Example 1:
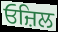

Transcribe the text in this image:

ਓਜ਼ਿਲ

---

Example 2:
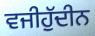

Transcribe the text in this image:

ਵਜੀਹੁੱਦੀਨ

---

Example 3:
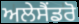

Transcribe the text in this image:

ਅਲੇਸੈਂਡਰੋ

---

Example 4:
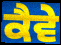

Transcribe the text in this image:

ਕੈਵੇ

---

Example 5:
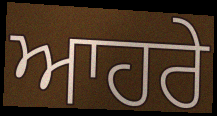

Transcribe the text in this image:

ਆਹਰੇ